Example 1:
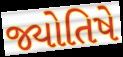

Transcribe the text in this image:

જ્યોતિષે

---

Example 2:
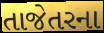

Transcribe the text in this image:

તાજેતરના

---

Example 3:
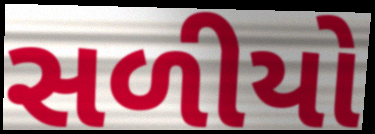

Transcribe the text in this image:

સળીયો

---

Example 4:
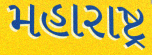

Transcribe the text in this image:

મહારાષ્ટ્ર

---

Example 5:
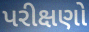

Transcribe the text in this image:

પરીક્ષણો